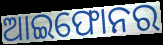
ଆଇଫୋନର